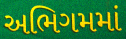
અભિગમમાં